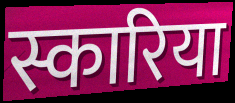
स्कारिया